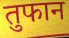
तुफान